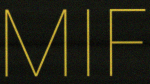
MIF